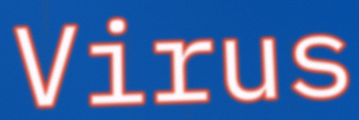
Virus